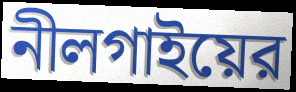
নীলগাইয়ের